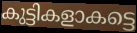
കുട്ടികളാകട്ടെ